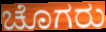
ಚೊಗರು